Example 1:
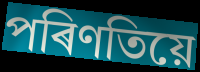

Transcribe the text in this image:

পৰিণতিয়ে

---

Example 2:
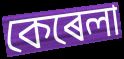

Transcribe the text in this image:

কেৰেলা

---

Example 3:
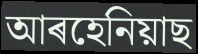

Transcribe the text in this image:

আৰহেনিয়াছ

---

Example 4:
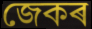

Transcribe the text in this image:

জেকৰ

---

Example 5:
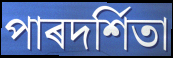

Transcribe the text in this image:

পাৰদৰ্শিতা